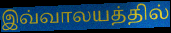
இவ்வாலயத்தில்